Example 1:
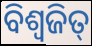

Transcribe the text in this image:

ବିଶ୍ୱଜିତ୍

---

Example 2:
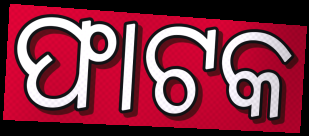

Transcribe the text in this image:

ଫାଟକ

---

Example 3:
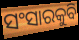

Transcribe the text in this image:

ସଂସାରକୁବି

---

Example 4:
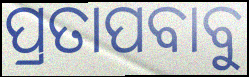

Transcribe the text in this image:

ପ୍ରତାପବାବୁ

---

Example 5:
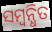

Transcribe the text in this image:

ସମ୍ବନ୍ଧିତ